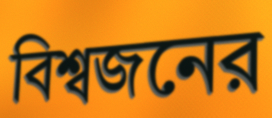
বিশ্বজনের